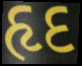
હૃદ